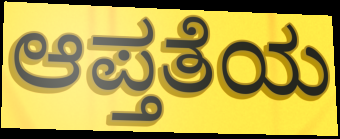
ಆಪ್ತತೆಯ